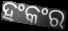
ହଂକଂର